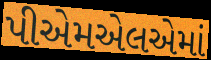
પીએમએલએમાં